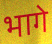
भागे